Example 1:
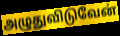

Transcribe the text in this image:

அழுதுவிடுவேன்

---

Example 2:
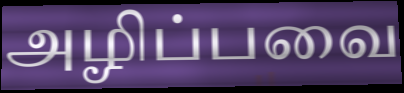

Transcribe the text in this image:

அழிப்பவை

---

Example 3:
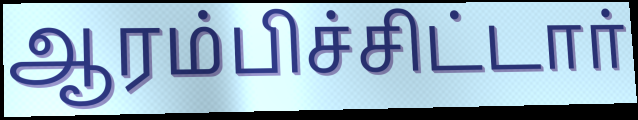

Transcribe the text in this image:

ஆரம்பிச்சிட்டார்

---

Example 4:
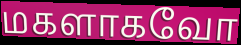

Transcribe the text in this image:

மகளாகவோ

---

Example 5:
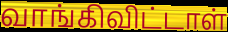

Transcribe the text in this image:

வாங்கிவிட்டாள்